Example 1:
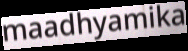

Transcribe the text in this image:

maadhyamika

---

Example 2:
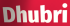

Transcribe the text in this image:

Dhubri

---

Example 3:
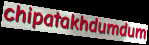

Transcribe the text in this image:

chipatakhdumdum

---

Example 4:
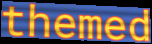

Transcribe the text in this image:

themed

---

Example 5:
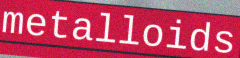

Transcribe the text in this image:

metalloids